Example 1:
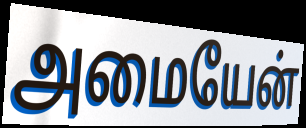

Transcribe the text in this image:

அமையேன்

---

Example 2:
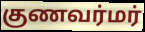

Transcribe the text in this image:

குணவர்மர்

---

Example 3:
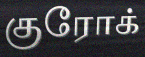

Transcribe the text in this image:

குரோக்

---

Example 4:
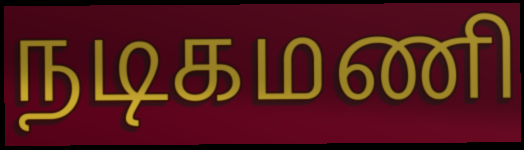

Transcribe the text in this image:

நடிகமணி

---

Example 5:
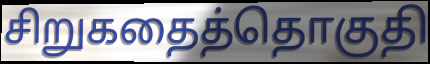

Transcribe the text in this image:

சிறுகதைத்தொகுதி